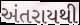
અંતરાયથી